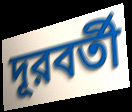
দূরবর্তী